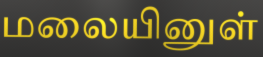
மலையினுள்